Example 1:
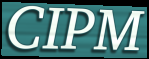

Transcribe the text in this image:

CIPM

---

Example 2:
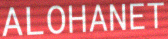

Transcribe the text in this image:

ALOHANET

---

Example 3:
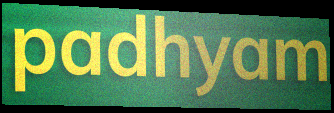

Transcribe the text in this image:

padhyam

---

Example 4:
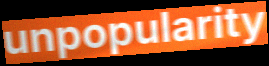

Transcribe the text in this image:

unpopularity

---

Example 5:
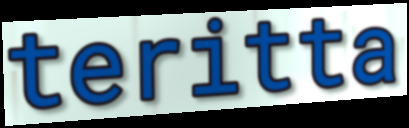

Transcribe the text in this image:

teritta